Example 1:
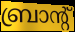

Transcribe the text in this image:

ബ്രാന്റ്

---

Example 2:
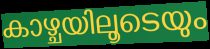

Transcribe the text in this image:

കാഴ്ചയിലൂടെയും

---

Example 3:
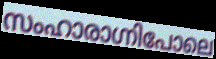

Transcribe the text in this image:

സംഹാരാഗ്നിപോലെ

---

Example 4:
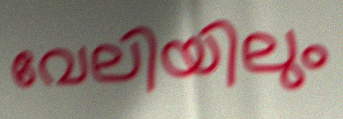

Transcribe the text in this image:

വേലിയിലും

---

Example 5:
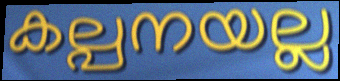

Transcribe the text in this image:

കല്പനയല്ല